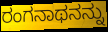
ರಂಗನಾಥನನ್ನು